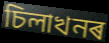
চিলাখনৰ